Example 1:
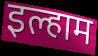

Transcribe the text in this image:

इल्हाम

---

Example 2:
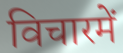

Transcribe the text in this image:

विचारमें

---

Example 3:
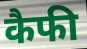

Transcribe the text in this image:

कैफी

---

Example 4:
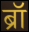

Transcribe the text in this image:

ब्रॉ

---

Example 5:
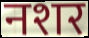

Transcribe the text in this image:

नशर